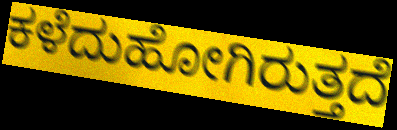
ಕಳೆದುಹೋಗಿರುತ್ತದೆ